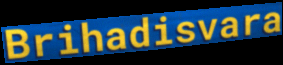
Brihadisvara